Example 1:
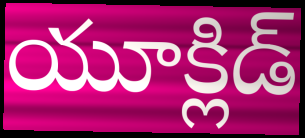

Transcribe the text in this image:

యూక్లిడ్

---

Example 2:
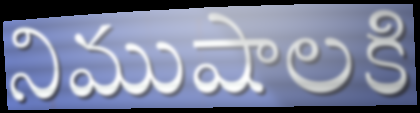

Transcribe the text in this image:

నిముషాలకి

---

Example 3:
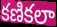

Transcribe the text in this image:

కణికలా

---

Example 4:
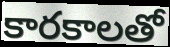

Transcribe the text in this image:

కారకాలతో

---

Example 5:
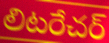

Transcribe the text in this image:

లిటరేచర్